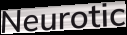
Neurotic